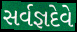
સર્વજ્ઞદેવે